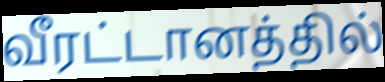
வீரட்டானத்தில்